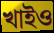
খাইও